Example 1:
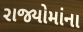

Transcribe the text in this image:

રાજ્યોમાંના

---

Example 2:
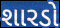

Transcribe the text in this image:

શારડો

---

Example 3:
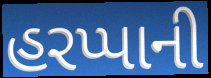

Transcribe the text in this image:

હરપ્પાની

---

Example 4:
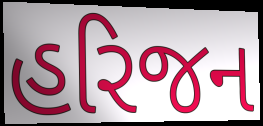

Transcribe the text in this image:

હરિજન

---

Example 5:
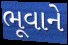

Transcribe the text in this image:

ભૂવાને